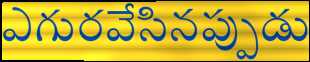
ఎగురవేసినప్పుడు